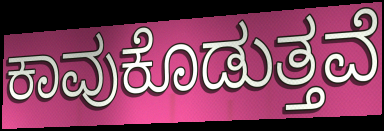
ಕಾವುಕೊಡುತ್ತವೆ